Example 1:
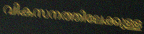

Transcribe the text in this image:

വികസനത്തിലേക്കുള്ള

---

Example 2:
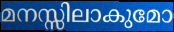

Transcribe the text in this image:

മനസ്സിലാകുമോ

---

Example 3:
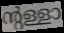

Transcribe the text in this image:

ന്റള്ളാ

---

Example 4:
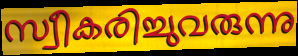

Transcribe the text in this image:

സ്വീകരിച്ചുവരുന്നു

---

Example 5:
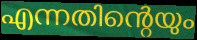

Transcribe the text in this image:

എന്നതിന്റെയും